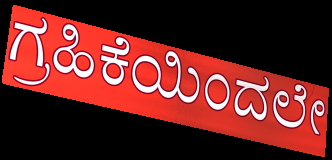
ಗ್ರಹಿಕೆಯಿಂದಲೇ